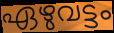
ഏഴുവട്ടം